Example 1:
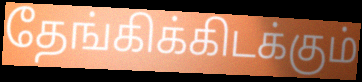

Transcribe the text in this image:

தேங்கிக்கிடக்கும்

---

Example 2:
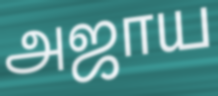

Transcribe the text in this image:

அஜாய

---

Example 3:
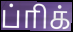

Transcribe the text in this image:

ப்ரிக்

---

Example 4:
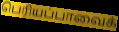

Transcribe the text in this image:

பெரியப்பாவைக்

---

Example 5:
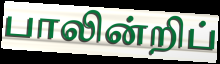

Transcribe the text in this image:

பாலின்றிப்